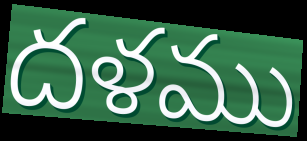
దళము